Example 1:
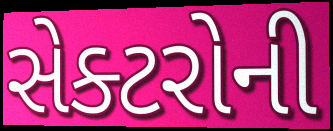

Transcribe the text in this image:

સેક્ટરોની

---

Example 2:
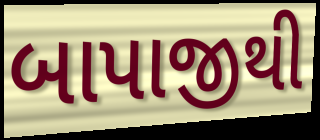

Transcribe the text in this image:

બાપાજીથી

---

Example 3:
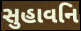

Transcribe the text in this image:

સુહાવનિ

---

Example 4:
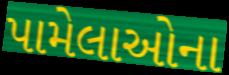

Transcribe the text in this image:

પામેલાઓના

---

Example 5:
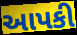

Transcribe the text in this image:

આપકી